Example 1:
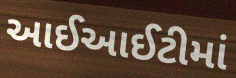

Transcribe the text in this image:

આઈઆઈટીમાં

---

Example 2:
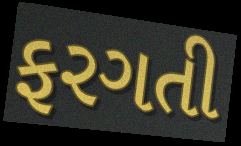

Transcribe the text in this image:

ફરગતી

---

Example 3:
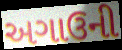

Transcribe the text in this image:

અગાઉની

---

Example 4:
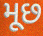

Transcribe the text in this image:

મૂછ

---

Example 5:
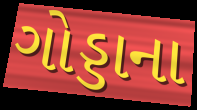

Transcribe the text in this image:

ગોડ્ડાના